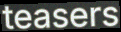
teasers